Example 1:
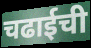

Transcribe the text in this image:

चढाईची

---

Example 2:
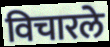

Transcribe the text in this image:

विचारले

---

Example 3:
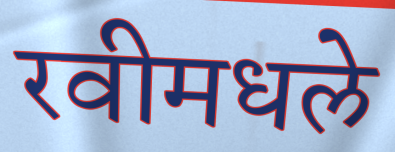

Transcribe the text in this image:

रवीमधले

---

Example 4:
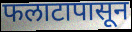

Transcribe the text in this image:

फलाटापासून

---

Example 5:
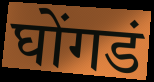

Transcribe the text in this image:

घोंगडं